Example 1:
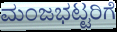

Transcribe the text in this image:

ಮಂಜಭಟ್ಟರಿಗೆ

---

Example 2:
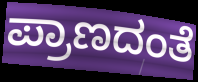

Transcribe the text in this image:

ಪ್ರಾಣದಂತೆ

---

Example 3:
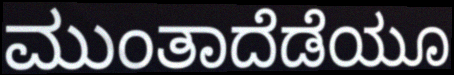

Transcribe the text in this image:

ಮುಂತಾದೆಡೆಯೂ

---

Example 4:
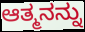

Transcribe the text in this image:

ಆತ್ಮನನ್ನು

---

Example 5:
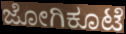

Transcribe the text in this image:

ಜೋಗಿಕೂಟೆ